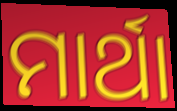
ମାର୍ଥା